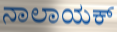
ನಾಲಾಯಕ್